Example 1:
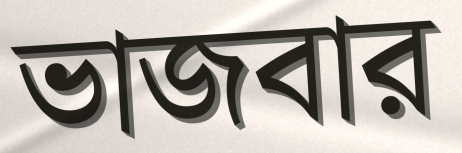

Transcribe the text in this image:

ভাজবার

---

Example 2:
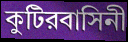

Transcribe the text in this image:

কুটিরবাসিনী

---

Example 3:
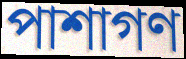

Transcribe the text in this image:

পাশাগণ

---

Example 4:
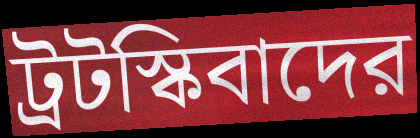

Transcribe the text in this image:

ট্রটস্কিবাদের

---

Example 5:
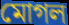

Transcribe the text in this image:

মোগল